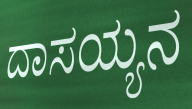
ದಾಸಯ್ಯನ